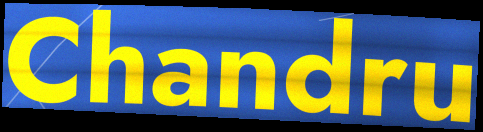
Chandru